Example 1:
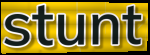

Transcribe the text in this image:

stunt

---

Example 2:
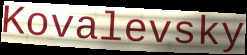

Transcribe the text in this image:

Kovalevsky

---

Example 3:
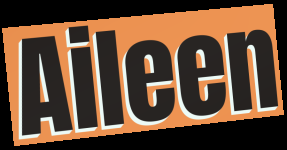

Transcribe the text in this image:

Aileen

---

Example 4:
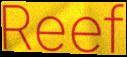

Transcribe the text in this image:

Reef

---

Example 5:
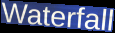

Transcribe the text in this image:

Waterfall